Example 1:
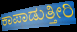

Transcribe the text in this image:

ಕಾಪಾಡುತ್ತೀರಿ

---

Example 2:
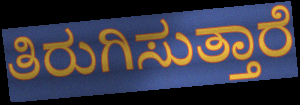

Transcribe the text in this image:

ತಿರುಗಿಸುತ್ತಾರೆ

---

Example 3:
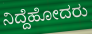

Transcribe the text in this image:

ನಿದ್ದೆಹೋದರು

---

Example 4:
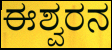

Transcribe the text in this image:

ಈಶ್ವರನ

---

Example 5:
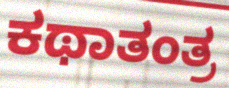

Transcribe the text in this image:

ಕಥಾತಂತ್ರ